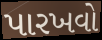
પારખવો